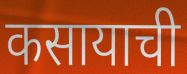
कसायाची